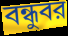
বন্ধুবর